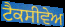
ਟੈਕਸੀਵੇਅ